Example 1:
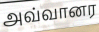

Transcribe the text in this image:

அவ்வானர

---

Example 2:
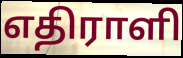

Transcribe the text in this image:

எதிராளி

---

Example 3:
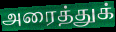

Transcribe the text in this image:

அரைத்துக்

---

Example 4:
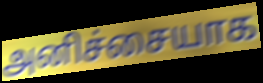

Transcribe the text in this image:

அனிச்சையாக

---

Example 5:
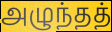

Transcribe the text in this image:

அழுந்தத்